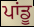
ਪਾਂਡੂ